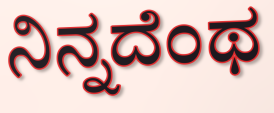
ನಿನ್ನದೆಂಥ